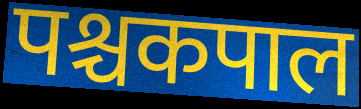
पश्चकपाल